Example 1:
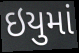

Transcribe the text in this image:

ઇયુમાં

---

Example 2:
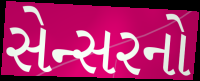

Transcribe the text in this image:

સેન્સરનો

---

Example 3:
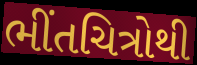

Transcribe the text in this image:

ભીંતચિત્રોથી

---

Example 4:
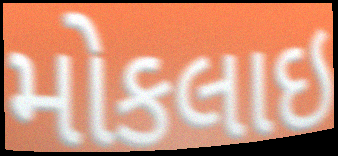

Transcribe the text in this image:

મોકલાઇ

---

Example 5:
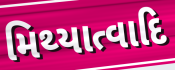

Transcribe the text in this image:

મિથ્યાત્વાદિ